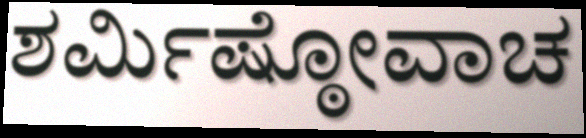
ಶರ್ಮಿಷ್ಠೋವಾಚ